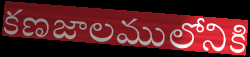
కణజాలములోనికి